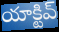
యాక్టివ్